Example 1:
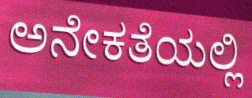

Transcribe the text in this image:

ಅನೇಕತೆಯಲ್ಲಿ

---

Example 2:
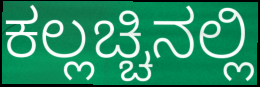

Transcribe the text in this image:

ಕಲ್ಲಚ್ಚಿನಲ್ಲಿ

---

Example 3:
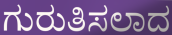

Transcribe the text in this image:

ಗುರುತಿಸಲಾದ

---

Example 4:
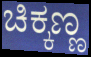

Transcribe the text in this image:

ಚಿಕ್ಕಣ್ಣ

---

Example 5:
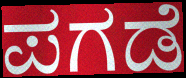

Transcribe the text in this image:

ಪಗಡೆ